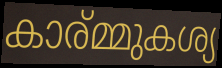
കാര്മ്മുകശ്യ